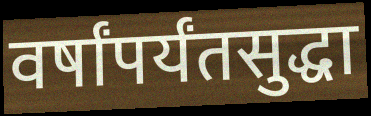
वर्षांपर्यंतसुद्धा